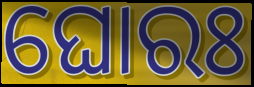
ଘୋରଃ